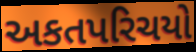
અકતપરિચયો